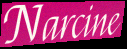
Narcine